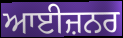
ਆਈਜ਼ਨਰ